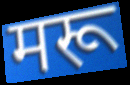
मरू